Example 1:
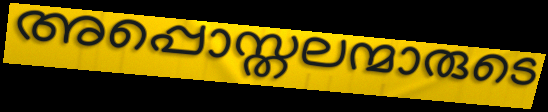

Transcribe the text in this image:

അപ്പൊസ്തലന്മാരുടെ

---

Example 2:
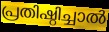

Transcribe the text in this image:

പ്രതിഷ്ഠിച്ചാൽ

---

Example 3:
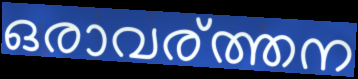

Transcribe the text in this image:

ഒരാവര്ത്തന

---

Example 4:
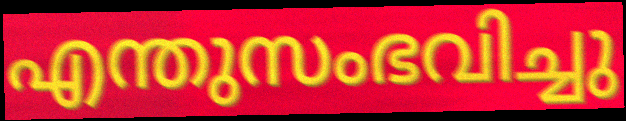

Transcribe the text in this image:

എന്തുസംഭവിച്ചു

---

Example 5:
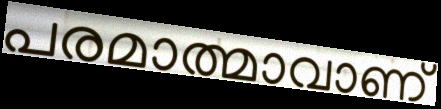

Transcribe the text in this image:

പരമാത്മാവാണ്